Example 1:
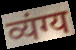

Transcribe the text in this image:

व्‍यंग्‍य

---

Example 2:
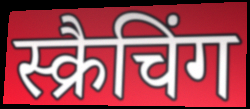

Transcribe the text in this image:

स्क्रैचिंग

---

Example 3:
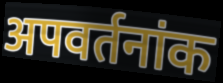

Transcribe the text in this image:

अपवर्तनांक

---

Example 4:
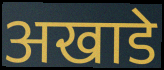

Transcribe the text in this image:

अखाडे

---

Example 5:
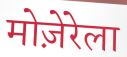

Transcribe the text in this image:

मोज़ेरेला